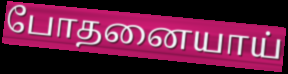
போதனையாய்